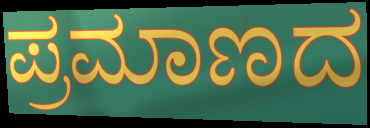
ಪ್ರಮಾಣದ